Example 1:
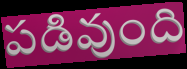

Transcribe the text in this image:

పడివుంది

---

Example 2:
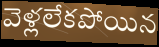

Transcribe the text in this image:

వెళ్లలేకపోయిన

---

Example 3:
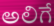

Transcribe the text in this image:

అలిగే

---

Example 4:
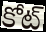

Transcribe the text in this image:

కోట్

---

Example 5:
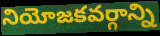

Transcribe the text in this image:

నియోజకవర్గాన్ని